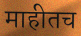
माहीतच